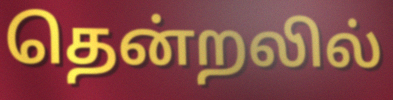
தென்றலில்